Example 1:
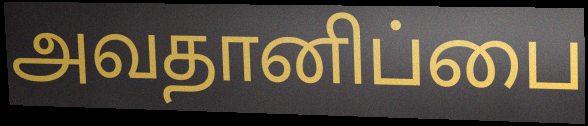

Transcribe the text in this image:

அவதானிப்பை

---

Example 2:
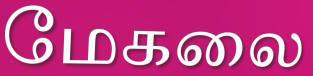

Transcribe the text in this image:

மேகலை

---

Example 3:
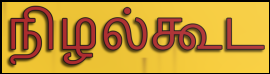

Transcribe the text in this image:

நிழல்கூட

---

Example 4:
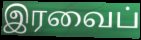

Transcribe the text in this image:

இரவைப்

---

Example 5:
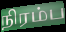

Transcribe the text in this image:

நிரம்ப